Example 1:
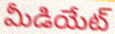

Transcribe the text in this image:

మీడియేట్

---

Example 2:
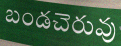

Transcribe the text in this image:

బండచెరువు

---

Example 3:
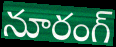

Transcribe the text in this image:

నూరంగ్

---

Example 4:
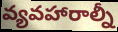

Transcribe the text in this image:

వ్యవహారాల్నీ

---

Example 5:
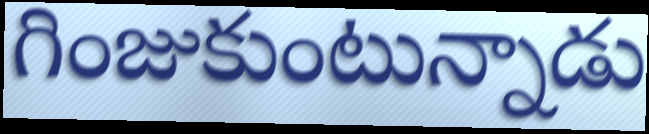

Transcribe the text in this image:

గింజుకుంటున్నాడు